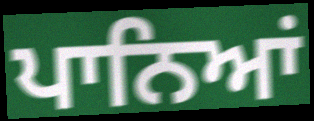
ਪਾਨਿਆਂ